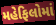
મહેફિલોમાં